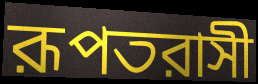
রূপতরাসী